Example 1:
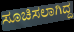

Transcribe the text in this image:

ಸೂಚಿಸಲಾಗಿದ್ದ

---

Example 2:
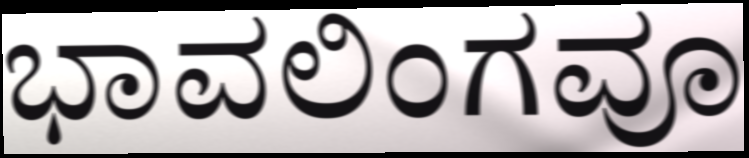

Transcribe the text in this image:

ಭಾವಲಿಂಗವೂ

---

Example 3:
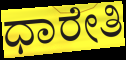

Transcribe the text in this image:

ಧಾರೇತಿ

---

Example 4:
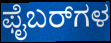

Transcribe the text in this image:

ಫೈಬರ್‌ಗಳ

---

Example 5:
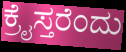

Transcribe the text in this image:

ಕ್ರೈಸ್ತರೆಂದು